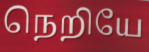
நெறியே